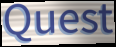
Quest